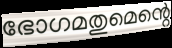
ഭോഗമതുമെന്റെ